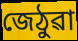
জেঠুৱা